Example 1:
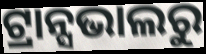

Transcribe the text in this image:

ଟ୍ରାନ୍ସଭାଲରୁ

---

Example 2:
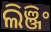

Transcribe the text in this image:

ଲିଞ୍ଜିଂ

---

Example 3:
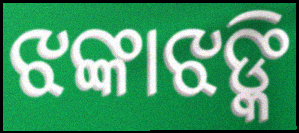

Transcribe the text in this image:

ଝଙ୍କାଝଙ୍କି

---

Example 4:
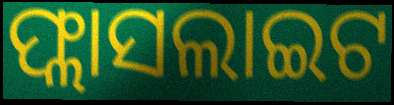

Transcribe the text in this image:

ଫ୍ଲାସଲାଇଟ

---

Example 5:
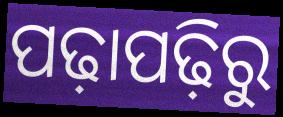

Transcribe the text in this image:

ପଢ଼ାପଢ଼ିରୁ